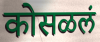
कोसळलं